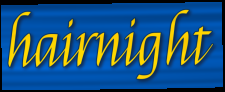
hairnight